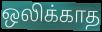
ஒலிக்காத